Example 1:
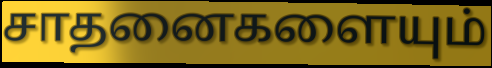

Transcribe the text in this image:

சாதனைகளையும்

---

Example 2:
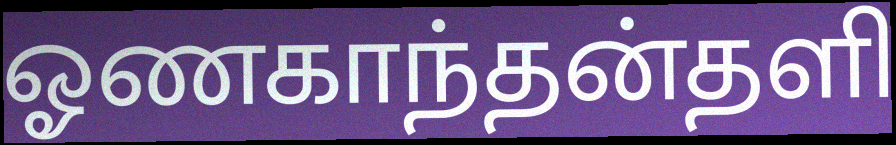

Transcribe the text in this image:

ஓணகாந்தன்தளி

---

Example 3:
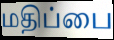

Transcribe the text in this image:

மதிப்பை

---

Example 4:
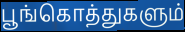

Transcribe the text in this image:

பூங்கொத்துகளும்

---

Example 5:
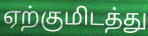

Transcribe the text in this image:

ஏற்குமிடத்து